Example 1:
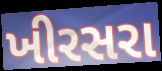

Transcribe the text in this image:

ખીરસરા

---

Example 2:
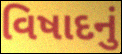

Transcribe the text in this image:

વિષાદનું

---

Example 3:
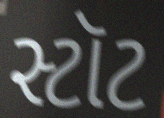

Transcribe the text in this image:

સ્ટૉટ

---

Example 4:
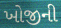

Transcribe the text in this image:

ખોજીની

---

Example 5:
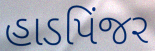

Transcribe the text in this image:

હાડપિંજર